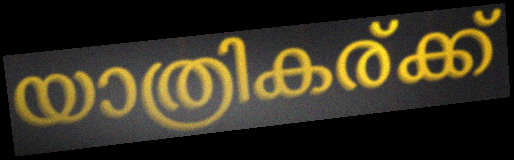
യാത്രികര്ക്ക്